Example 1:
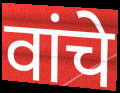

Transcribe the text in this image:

वांचे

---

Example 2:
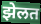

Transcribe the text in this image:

झेलत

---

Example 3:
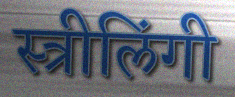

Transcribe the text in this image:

स्त्रीलिंगी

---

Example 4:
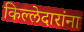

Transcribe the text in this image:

किल्लेदारांना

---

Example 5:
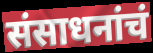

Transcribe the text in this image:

संसाधनांचं